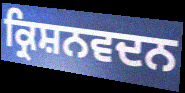
ਕ੍ਰਿਸ਼ਨਵਦਨ